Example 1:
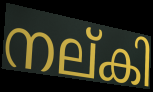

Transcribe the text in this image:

നല്കി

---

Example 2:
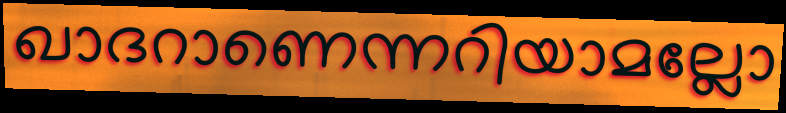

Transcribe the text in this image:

ഖാദറാണെന്നറിയാമല്ലോ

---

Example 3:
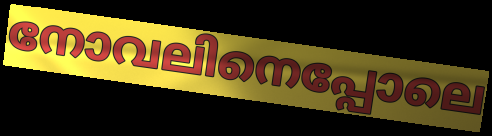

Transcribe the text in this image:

നോവലിനെപ്പോലെ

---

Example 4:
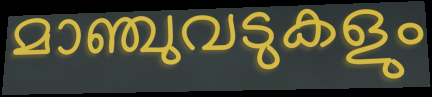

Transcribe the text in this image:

മാഞ്ചുവടുകളും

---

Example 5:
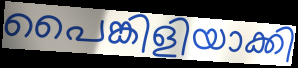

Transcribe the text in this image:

പൈങ്കിളിയാക്കി